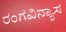
ರಂಗವಿನ್ಯಾಸ